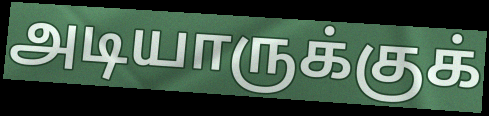
அடியாருக்குக்